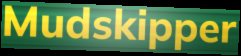
Mudskipper